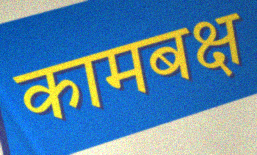
कामबक्ष